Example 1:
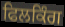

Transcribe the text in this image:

ਫਿਲਕਿੰਗ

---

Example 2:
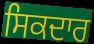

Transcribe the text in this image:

ਸਿਕਦਾਰ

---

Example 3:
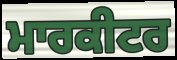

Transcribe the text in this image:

ਮਾਰਕੀਟਰ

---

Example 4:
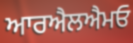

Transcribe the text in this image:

ਆਰਐਲਐਮਓ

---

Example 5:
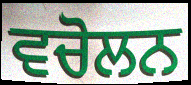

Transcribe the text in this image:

ਵਚੋਲਨ